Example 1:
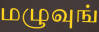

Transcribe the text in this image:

மழுவுங்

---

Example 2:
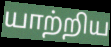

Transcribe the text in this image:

யாற்றிய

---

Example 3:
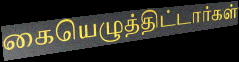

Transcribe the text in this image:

கையெழுத்திட்டார்கள்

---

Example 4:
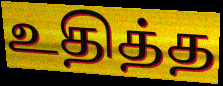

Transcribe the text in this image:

உதித்த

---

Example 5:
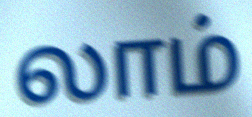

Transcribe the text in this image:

லாம்